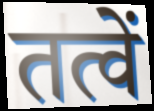
तत्वें